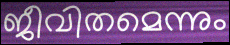
ജീവിതമെന്നും